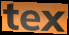
tex